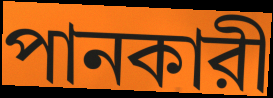
পানকারী